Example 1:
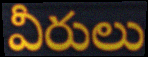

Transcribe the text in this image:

వీరులు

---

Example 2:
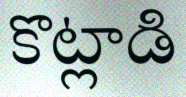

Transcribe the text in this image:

కొట్లాడి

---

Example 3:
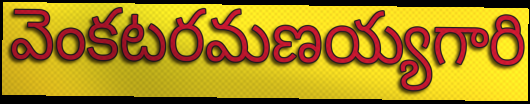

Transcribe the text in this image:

వెంకటరమణయ్యగారి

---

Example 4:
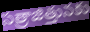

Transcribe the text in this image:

సత్రాజిత్తునకు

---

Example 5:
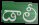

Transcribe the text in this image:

డాలీ